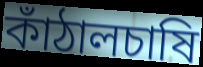
কাঁঠালচাষি